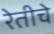
रेतीचे